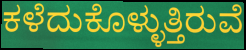
ಕಳೆದುಕೊಳ್ಳುತ್ತಿರುವೆ